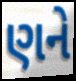
ણને